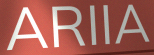
ARIIA